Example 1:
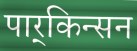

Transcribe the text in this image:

पार्किन्सन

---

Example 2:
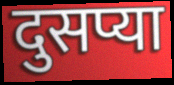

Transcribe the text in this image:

दुसप्या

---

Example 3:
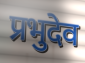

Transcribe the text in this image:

प्रभुदेव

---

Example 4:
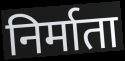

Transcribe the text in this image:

निर्माता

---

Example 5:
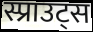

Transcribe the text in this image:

स्प्राउट्स